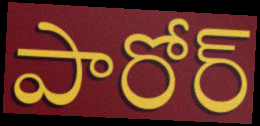
పారోర్